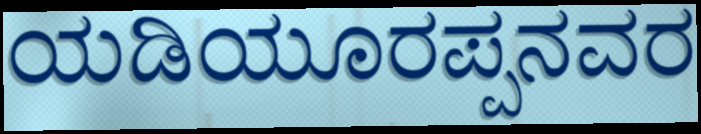
ಯಡಿಯೂರಪ್ಪನವರ